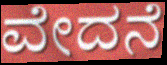
ವೇದನೆ